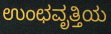
ಉಂಛವೃತ್ತಿಯ